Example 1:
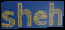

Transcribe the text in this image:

sheh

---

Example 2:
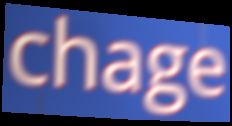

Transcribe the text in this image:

chage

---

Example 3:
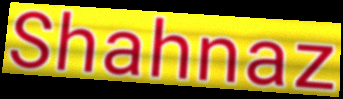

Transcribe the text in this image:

Shahnaz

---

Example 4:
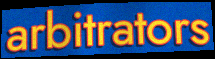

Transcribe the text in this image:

arbitrators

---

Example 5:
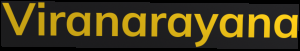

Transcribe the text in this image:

Viranarayana